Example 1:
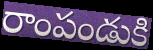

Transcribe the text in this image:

రాంపండుకి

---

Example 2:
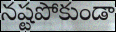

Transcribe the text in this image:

నష్టపోకుండా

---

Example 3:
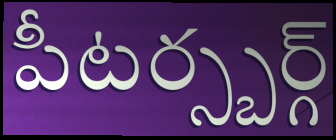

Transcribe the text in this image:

పీటర్స్బర్గ్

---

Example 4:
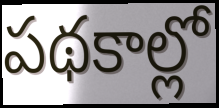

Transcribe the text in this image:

పథకాల్లో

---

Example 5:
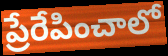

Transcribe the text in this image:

ప్రేరేపించాలో